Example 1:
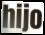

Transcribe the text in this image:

hijo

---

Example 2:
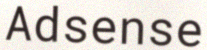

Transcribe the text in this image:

Adsense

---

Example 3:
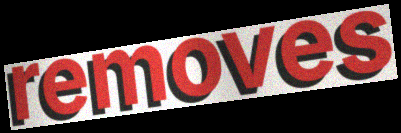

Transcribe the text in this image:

removes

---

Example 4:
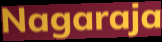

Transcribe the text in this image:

Nagaraja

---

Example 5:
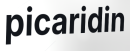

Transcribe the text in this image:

picaridin